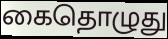
கைதொழுது